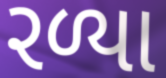
રળ્યા